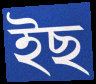
ইছ